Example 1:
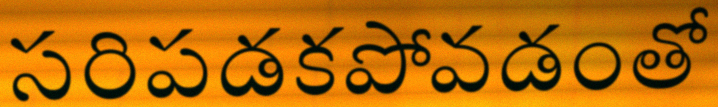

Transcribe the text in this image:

సరిపడకపోవడంతో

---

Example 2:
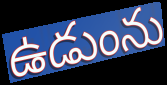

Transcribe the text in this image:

ఉడుంను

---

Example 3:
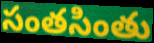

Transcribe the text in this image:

సంతసింతు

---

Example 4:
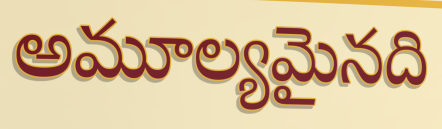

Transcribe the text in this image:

అమూల్యమైనది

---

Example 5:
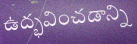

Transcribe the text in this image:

ఉద్భవించడాన్ని